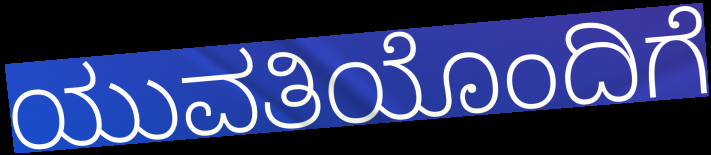
ಯುವತಿಯೊಂದಿಗೆ